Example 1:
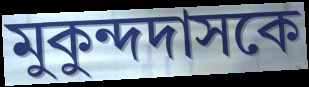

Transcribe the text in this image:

মুকুন্দদাসকে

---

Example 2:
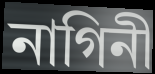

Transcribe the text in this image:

নাগিনী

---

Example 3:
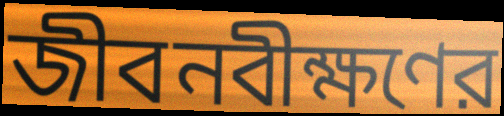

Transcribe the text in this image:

জীবনবীক্ষণের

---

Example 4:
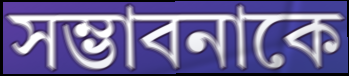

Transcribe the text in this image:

সম্ভাবনাকে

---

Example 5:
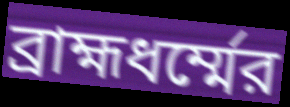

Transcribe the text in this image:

ব্রাহ্মধর্ম্মের